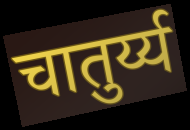
चातुर्य्य